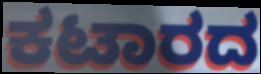
ಕಟಾರದ